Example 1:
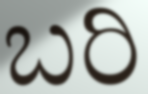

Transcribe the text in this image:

ಬರಿ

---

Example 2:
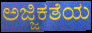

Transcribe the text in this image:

ಅಜ್ಜಿಕತೆಯ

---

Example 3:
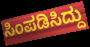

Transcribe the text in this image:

ಸಿಂಪಡಿಸಿದ್ದು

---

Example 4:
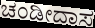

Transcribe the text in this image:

ಚಂಡೀದಾಸ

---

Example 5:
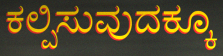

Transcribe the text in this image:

ಕಲ್ಪಿಸುವುದಕ್ಕೂ